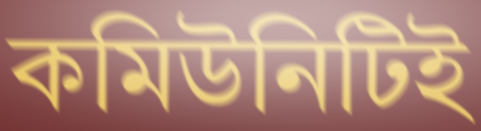
কমিউনিটিই